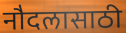
नौदलासाठी